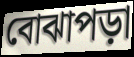
বোঝাপড়া